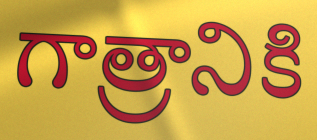
గాత్రానికి